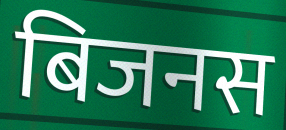
बिजनस